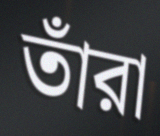
তাঁরা